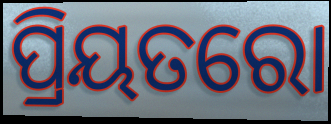
ପ୍ରିୟତରୋ